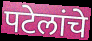
पटेलांचे